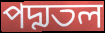
পদ্মতল